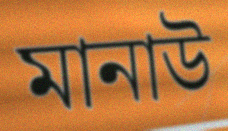
মানাউ